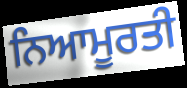
ਨਿਆਮੂਰਤੀ